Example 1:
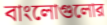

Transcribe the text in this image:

বাংলোগুলোর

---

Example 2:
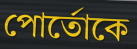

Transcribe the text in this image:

পোর্তোকে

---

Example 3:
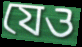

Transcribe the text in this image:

যেও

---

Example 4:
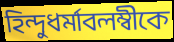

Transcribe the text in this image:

হিন্দুধর্মাবলম্বীকে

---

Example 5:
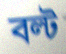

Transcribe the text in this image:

বল্ট